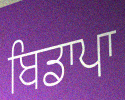
ਬਿਡਾਪਾ